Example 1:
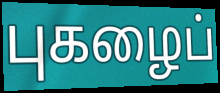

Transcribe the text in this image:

புகழைப்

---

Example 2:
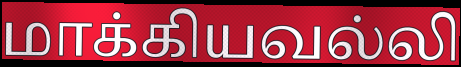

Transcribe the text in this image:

மாக்கியவல்லி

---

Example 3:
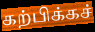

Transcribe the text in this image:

கற்பிக்கச்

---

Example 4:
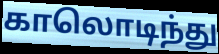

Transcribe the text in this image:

காலொடிந்து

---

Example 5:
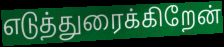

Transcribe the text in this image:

எடுத்துரைக்கிறேன்